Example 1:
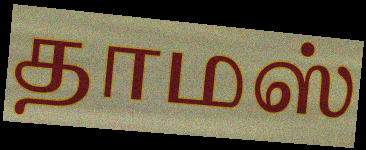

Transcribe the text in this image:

தாமஸ்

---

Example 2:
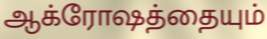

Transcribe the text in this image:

ஆக்ரோஷத்தையும்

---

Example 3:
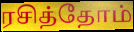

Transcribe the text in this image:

ரசித்தோம்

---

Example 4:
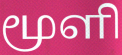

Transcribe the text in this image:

மூளி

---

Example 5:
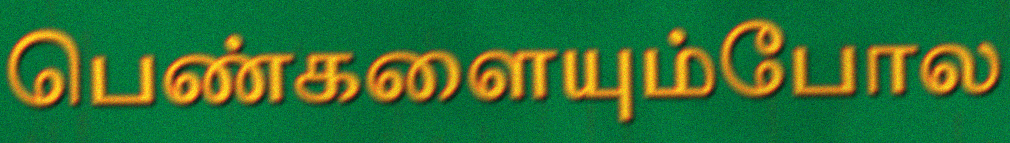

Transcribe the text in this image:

பெண்களையும்போல